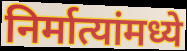
निर्मात्यांमध्ये